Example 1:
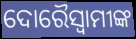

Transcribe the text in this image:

ଦୋରୈସ୍ବାମୀଙ୍କ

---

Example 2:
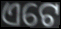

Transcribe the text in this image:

ଏଟେ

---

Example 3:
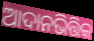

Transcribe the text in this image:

ଆଦାନଭିତ୍ତିକ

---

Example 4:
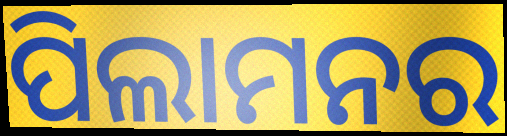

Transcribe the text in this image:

ପିଲାମନର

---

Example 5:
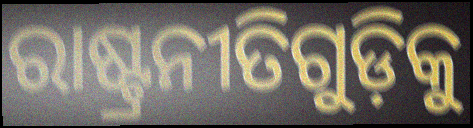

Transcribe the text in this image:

ରାଷ୍ଟ୍ରନୀତିଗୁଡ଼ିକୁ